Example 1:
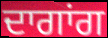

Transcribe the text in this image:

ਦਾਗਾਂਗ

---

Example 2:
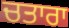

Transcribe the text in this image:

ਚਤਾਰਾ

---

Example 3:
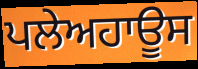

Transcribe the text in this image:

ਪਲੇਅਹਾਊਸ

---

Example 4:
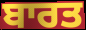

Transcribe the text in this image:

ਬਾਰਤ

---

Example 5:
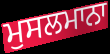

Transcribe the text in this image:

ਮੁਸਲਮਾਨਾ